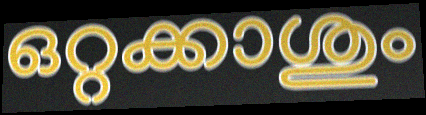
ഒറ്റക്കാശും